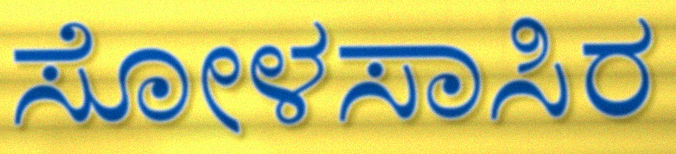
ಸೋಳಸಾಸಿರ